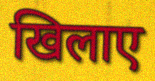
खिलाए